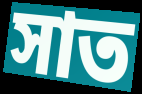
সাত